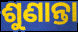
ଶୁଣାନ୍ତା